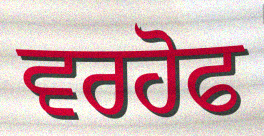
ਵਰਹੋਫ